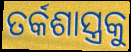
ତର୍କଶାସ୍ତ୍ରକୁ